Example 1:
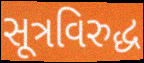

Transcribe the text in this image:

સૂત્રવિરુદ્ધ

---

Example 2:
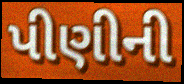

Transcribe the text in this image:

પીણીની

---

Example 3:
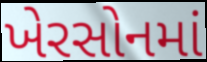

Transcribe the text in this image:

ખેરસોનમાં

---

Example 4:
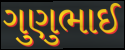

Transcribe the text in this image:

ગુણુભાઈ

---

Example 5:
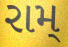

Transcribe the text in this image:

રામ્